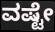
ವಷ್ಟೇ